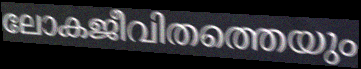
ലോകജീവിതത്തെയും